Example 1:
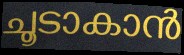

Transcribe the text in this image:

ചൂടാകാൻ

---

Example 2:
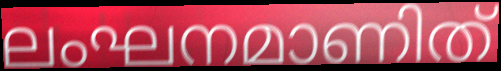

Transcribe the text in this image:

ലംഘനമാണിത്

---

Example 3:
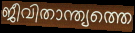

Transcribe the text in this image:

ജീവിതാന്ത്യത്തെ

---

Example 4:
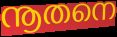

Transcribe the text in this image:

നൂതനെ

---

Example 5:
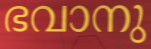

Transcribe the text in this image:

ഭവാനു